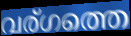
വര്ഗത്തെ